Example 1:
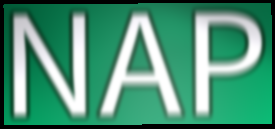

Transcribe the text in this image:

NAP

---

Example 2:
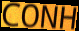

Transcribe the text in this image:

CONH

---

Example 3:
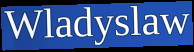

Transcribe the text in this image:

Wladyslaw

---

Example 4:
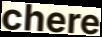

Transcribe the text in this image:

chere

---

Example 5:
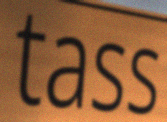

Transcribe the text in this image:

tass